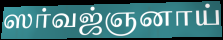
ஸர்வஜ்ஞனாய்